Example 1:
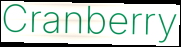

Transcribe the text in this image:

Cranberry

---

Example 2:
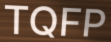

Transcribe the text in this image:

TQFP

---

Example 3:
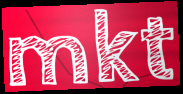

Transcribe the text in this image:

mkt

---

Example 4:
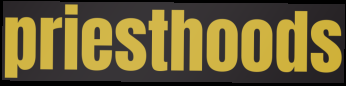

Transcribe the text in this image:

priesthoods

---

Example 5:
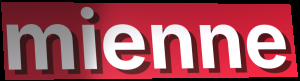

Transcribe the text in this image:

mienne